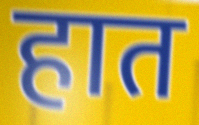
हात